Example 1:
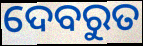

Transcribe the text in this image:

ଦେବରୁତ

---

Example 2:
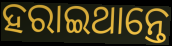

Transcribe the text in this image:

ହରାଇଥାନ୍ତେ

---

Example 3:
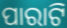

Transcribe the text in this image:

ପାରାଟି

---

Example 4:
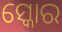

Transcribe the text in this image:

ସ୍କୋର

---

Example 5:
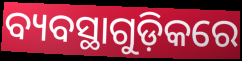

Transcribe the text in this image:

ବ୍ୟବସ୍ଥାଗୁଡ଼ିକରେ